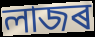
লাজৰ